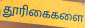
தூரிகைகளை